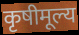
कृषीमूल्य